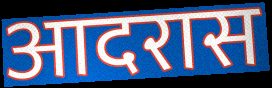
आदरास